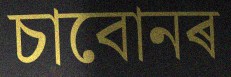
চাবোনৰ